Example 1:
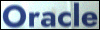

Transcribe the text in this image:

Oracle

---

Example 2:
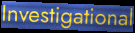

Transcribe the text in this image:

Investigational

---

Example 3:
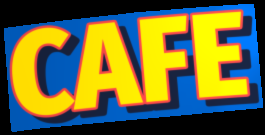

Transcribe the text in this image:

CAFE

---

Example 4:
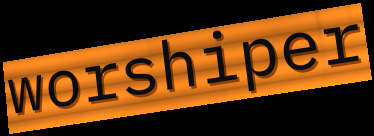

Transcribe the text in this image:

worshiper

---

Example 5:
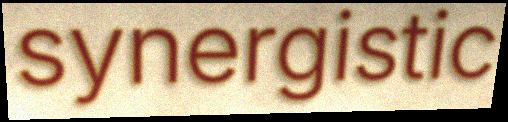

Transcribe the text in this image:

synergistic